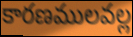
కారణములవల్ల